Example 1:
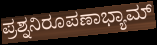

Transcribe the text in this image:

ಪ್ರಶ್ನನಿರೂಪಣಾಭ್ಯಾಮ್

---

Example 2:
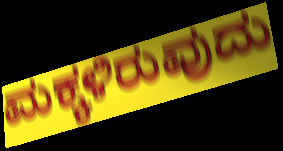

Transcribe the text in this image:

ಮಕ್ಕಳಿರುವುದು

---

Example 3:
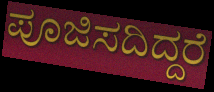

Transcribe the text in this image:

ಪೂಜಿಸದಿದ್ದರೆ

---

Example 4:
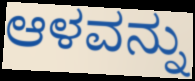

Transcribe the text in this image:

ಆಳವನ್ನು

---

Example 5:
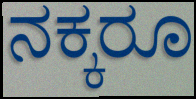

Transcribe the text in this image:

ನಕ್ಕರೂ